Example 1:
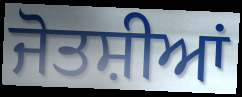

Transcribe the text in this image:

ਜੋਤਸ਼ੀਆਂ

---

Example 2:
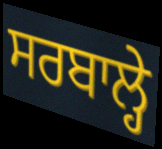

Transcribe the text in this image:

ਸਰਬਾਲ੍ਹੇ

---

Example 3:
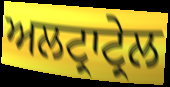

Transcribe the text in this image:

ਅਲਟ੍ਰਾਟ੍ਰੇਲ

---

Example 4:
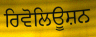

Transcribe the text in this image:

ਰਿਵੋਲਿਊਸ਼ਨ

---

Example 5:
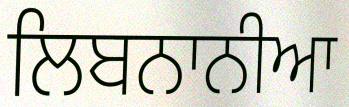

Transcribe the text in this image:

ਲਿਬਨਾਨੀਆ